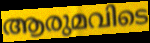
ആരുമവിടെ